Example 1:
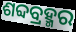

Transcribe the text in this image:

ଶବ୍ଦବ୍ରହ୍ମର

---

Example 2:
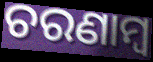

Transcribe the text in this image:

ଚରଣାମ୍ବ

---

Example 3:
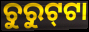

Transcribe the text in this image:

ଚୁରୁଟ୍‍ଟା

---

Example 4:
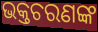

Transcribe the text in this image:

ଭକ୍ତଚରଣଙ୍କ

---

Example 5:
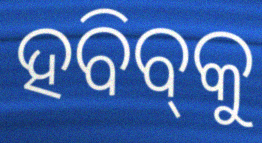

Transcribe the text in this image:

ହବିବ୍‌କୁ